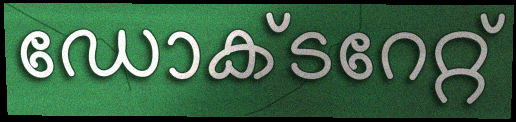
ഡോക്ടറേറ്റ്